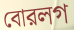
বোরলগ